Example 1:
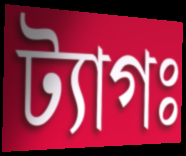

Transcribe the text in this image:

ট্যাগঃ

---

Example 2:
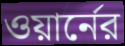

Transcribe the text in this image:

ওয়ার্নের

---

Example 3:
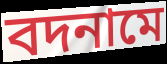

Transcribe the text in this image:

বদনামে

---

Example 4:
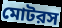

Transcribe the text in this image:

মোটরস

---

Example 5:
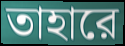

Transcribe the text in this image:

তাহারে